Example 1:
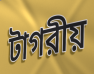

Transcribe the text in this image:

টাগরীয়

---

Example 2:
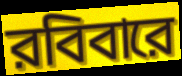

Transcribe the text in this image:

রবিবারে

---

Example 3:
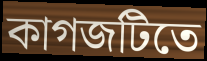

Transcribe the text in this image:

কাগজটিতে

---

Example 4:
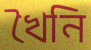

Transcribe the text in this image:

খৈনি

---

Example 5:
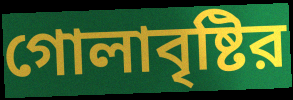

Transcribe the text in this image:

গোলাবৃষ্টির